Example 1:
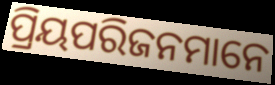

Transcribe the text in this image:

ପ୍ରିୟପରିଜନମାନେ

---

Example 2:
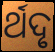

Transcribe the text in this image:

ର୍ଥଦୃ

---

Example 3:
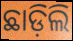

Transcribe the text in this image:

ଛାଡ଼ିଲି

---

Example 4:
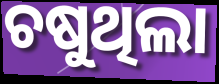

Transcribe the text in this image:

ଚଷୁଥିଲା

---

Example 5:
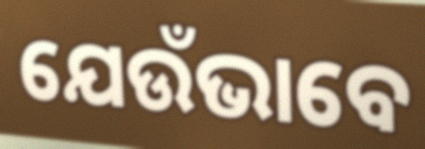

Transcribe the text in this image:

ଯେଉଁଭାବେ